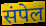
संपेल